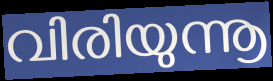
വിരിയുന്നൂ